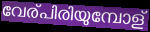
വേര്പിരിയുമ്പോള്